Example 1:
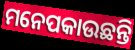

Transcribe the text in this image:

ମନେପକାଉଛନ୍ତି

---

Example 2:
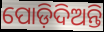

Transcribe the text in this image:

ପୋଡ଼ିଦିଅନ୍ତି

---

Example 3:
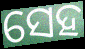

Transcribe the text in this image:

ସେହ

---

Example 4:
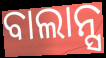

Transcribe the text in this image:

ବାଲାନ୍ସ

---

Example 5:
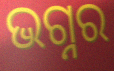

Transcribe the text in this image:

ଭଗ୍ନର